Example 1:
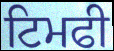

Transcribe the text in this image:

ਟਿਮਫੀ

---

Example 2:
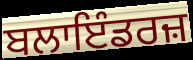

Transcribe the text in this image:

ਬਲਾਇੰਡਰਜ਼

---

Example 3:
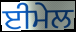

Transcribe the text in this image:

ਈਮੇਲ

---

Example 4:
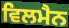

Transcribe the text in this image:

ਵਿਲਮੈਨ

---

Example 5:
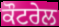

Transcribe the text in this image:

ਕੌਟਰੇਲ